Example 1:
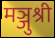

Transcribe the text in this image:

मञ्जुश्री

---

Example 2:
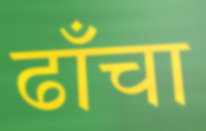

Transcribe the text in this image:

ढाँचा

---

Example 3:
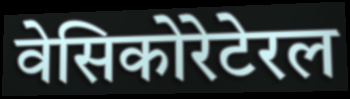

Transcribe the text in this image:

वेसिकोरेटेरल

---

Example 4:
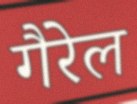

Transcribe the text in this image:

गैरेल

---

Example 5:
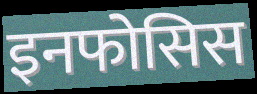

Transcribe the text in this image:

इनफोसिस